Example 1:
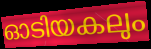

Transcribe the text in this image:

ഓടിയകലും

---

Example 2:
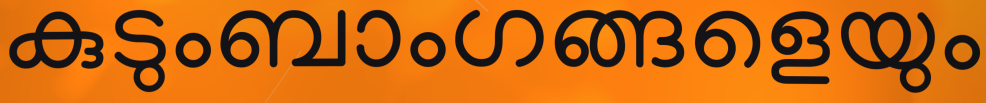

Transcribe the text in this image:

കുടുംബാംഗങ്ങളെയും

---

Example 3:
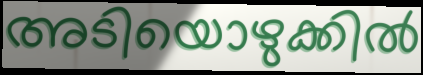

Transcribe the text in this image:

അടിയൊഴുക്കിൽ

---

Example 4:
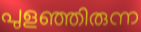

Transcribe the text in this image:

പുളഞ്ഞിരുന്ന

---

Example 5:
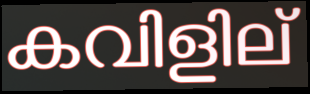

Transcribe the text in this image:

കവിളില്